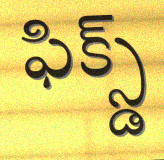
ఫిక్స్డ్